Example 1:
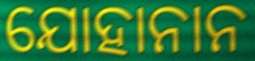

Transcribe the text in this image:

ଯୋହାନାନ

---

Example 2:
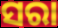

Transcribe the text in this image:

ସରା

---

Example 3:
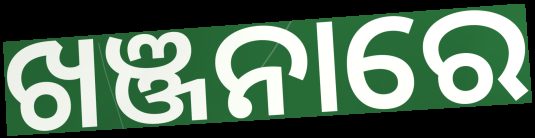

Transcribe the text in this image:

ଖଞ୍ଜନାରେ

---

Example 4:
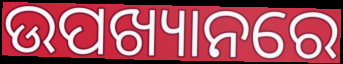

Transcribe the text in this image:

ଉପଖ୍ୟାନରେ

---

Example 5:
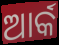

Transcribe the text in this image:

ଆର୍କ